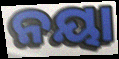
ନୟା